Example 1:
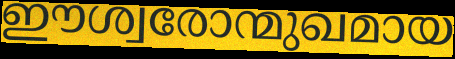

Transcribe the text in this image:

ഈശ്വരോന്മുഖമായ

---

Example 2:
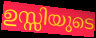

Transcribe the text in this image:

ഉസ്സിയുടെ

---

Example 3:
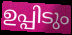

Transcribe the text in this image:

ഉപ്പിടും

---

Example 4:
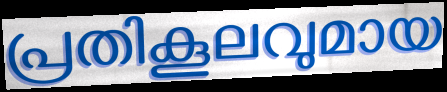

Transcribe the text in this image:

പ്രതികൂലവുമായ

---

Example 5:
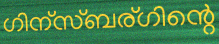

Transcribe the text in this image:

ഗിന്സ്ബര്ഗിന്റെ